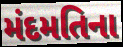
મંદમતિના